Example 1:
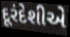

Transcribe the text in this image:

દૂરંદેશીએ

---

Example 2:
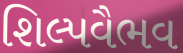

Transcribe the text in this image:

શિલ્પવૈભવ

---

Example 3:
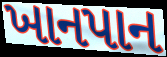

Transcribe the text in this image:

ખાનપાન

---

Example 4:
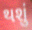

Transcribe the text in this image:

થશું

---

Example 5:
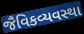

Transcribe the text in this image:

જૈવિકવ્યવસ્થા